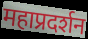
महाप्रदर्शन